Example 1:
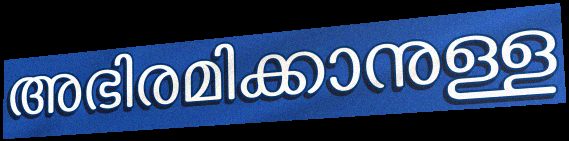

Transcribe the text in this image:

അഭിരമിക്കാനുള്ള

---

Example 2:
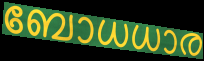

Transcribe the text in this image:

ബോധധാര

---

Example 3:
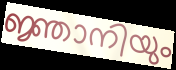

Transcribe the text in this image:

ജ്ഞാനിയും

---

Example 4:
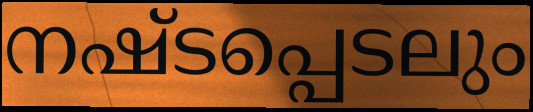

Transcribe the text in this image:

നഷ്ടപ്പെടലും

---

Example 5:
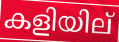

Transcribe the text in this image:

കളിയില്